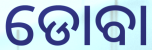
ଡୋବା